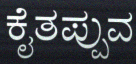
ಕೈತಪ್ಪುವ